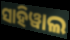
ସାହିୱାଲ